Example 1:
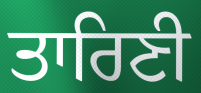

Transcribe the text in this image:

ਤਾਰਿਣੀ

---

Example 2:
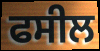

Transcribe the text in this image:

ਫਸੀਲ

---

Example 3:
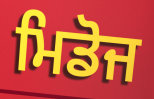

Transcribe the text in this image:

ਮਿਡੋਜ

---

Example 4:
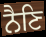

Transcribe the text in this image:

ਨੈਣਿ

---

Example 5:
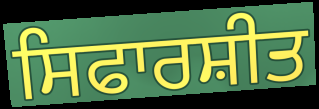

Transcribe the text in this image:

ਸਿਫਾਰਸ਼ੀਤ